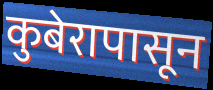
कुबेरापासून